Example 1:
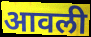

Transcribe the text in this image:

आवली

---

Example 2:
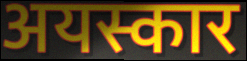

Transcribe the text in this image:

अयस्कार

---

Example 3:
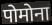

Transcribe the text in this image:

पोमोना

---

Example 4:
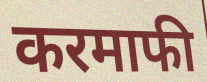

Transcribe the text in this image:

करमाफी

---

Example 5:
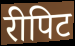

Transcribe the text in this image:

रीपिट